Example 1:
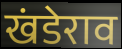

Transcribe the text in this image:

खंडेराव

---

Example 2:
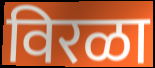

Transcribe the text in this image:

विरळा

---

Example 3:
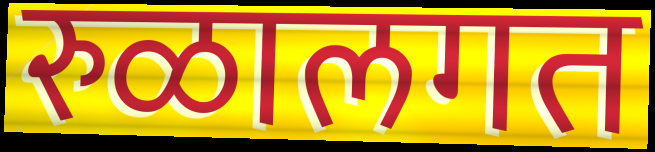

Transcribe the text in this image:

रुळालगत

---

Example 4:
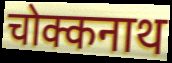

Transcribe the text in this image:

चोक्कनाथ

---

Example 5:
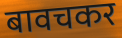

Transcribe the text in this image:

बावचकर